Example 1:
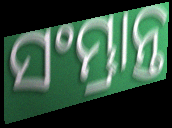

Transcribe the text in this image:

ସଂମ୍ଭ୍ରାନ୍ତ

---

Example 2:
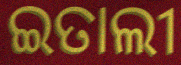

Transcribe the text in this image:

ଇତାଲୀ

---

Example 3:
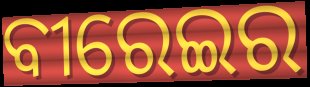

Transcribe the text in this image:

ବୀରେଇର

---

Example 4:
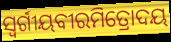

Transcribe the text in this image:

ସ୍ୱର୍ଗୀୟବୀରମିତ୍ରୋଦୟ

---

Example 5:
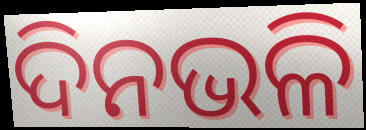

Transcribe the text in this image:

ଦିନଭଳି